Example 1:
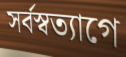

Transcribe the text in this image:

সর্বস্বত্যাগে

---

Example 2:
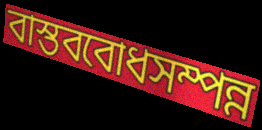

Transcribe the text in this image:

বাস্তববোধসম্পন্ন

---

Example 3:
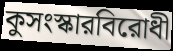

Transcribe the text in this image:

কুসংস্কারবিরোধী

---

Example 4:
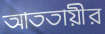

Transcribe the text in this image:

আততায়ীর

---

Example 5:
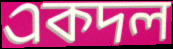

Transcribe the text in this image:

একদল